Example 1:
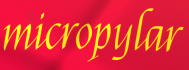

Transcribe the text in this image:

micropylar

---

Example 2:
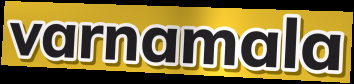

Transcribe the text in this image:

varnamala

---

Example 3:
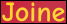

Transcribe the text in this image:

Joine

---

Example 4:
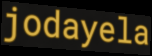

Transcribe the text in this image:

jodayela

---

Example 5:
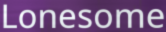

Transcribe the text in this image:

Lonesome